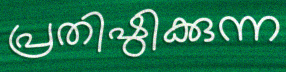
പ്രതിഷ്ഠിക്കുന്ന